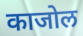
काजोल